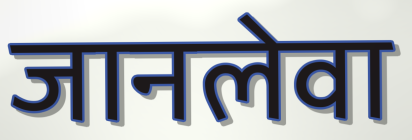
जानलेवा